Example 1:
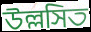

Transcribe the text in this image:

উল্লসিত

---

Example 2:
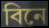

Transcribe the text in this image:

বিনে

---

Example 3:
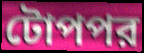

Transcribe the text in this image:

টোপপর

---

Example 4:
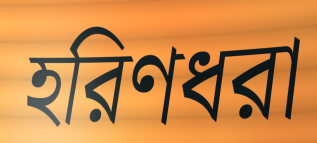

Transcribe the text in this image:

হরিণধরা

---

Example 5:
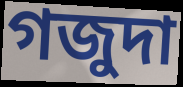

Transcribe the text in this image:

গজুদা